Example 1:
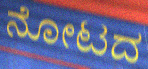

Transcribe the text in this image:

ನೋಟದ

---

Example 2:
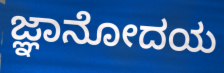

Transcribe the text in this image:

ಜ್ಞಾನೋದಯ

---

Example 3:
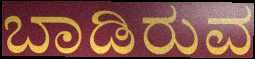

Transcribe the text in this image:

ಬಾಡಿರುವ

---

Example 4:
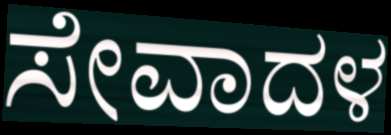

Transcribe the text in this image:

ಸೇವಾದಳ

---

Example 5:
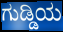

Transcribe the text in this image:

ಗುಡ್ಡಿಯ